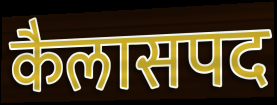
कैलासपद